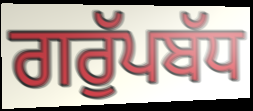
ਗਰੁੱਪਬੱਧ